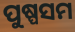
ପୁଷ୍ପସମ